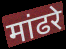
मांढरे